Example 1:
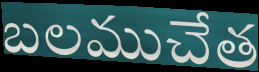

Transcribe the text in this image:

బలముచేత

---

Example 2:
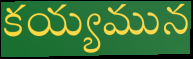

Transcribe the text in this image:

కయ్యమున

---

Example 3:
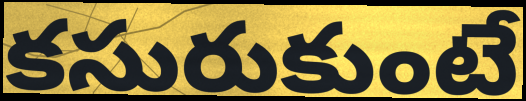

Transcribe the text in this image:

కసురుకుంటే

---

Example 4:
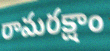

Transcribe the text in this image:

రామరక్షాం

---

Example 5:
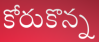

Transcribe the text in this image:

కోరుకొన్న